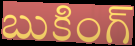
బుకింగ్